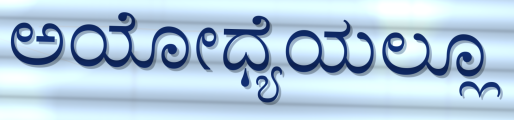
ಅಯೋಧ್ಯೆಯಲ್ಲೂ